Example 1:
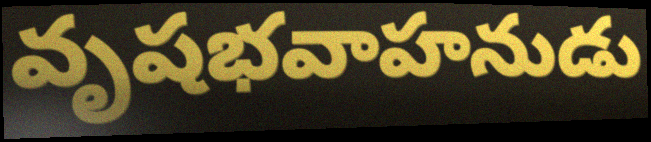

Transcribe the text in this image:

వృషభవాహనుడు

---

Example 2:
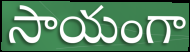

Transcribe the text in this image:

సాయంగా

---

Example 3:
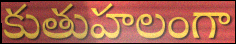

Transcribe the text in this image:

కుతుహలంగా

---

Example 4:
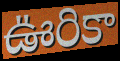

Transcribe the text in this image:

ఊరికా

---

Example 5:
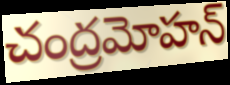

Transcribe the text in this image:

చంద్రమోహన్